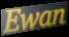
Ewan